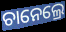
ଚାନେଲ୍ରେ